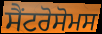
ਸੈਂਟਰੋਸੋਮਸ